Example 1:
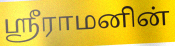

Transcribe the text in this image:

ஸ்ரீராமனின்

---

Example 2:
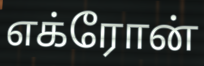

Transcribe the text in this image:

எக்ரோன்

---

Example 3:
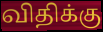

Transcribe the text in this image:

விதிக்கு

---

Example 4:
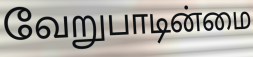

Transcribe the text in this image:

வேறுபாடின்மை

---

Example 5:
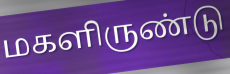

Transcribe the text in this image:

மகளிருண்டு